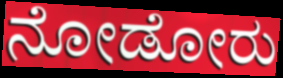
ನೋಡೋರು